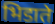
भिडाते